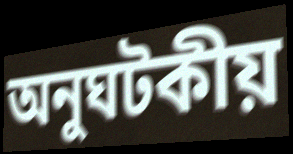
অনুঘটকীয়